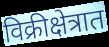
विक्रीक्षेत्रात